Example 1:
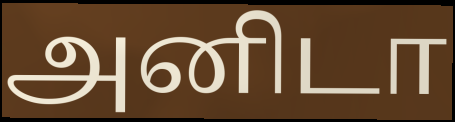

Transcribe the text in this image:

அனிடா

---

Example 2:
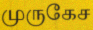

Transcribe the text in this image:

முருகேச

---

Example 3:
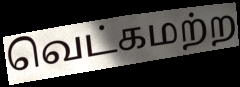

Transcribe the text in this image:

வெட்கமற்ற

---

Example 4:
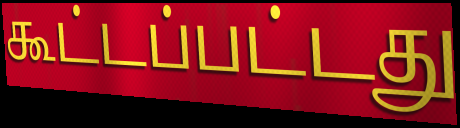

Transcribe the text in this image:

கூட்டப்பட்டது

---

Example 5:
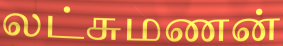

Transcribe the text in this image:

லட்சுமணன்